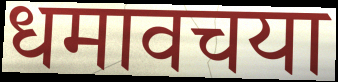
धमावचया